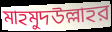
মাহমুদউল্লাহর